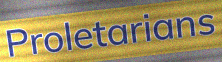
Proletarians